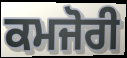
ਕਮਜੋਰੀ